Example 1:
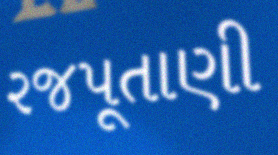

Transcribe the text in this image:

રજપૂતાણી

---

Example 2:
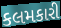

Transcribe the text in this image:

કલમકારી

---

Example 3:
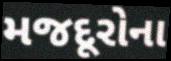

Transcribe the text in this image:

મજદૂરોના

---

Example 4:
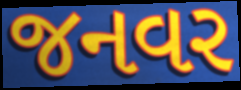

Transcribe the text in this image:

જનવર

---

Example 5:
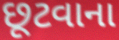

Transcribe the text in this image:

છૂટવાના